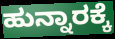
ಹುನ್ನಾರಕ್ಕೆ